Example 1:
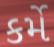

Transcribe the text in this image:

કર્મે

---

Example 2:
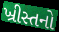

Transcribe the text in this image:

ખ્રીસ્તનો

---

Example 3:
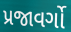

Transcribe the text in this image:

પ્રજાવર્ગો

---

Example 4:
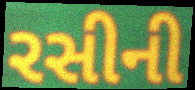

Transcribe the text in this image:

રસીની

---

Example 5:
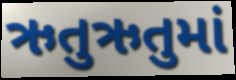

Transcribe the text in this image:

ઋતુઋતુમાં